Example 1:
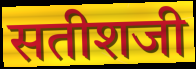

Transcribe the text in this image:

सतीशजी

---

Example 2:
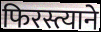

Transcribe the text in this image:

फिरस्त्याने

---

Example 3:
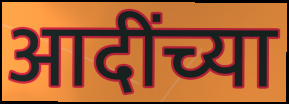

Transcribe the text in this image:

आदींच्या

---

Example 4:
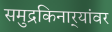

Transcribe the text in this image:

समुद्रकिनार्यांवर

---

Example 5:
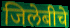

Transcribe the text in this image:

जिलेबीचे